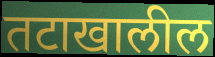
तटाखालील